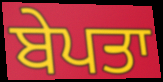
ਬੇਪਤਾ